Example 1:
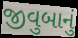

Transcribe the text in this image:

જીવુબાનું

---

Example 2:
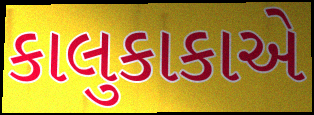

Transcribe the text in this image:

કાલુકાકાએ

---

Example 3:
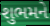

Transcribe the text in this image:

શુભમને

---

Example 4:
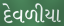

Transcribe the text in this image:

દેવળીયા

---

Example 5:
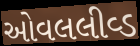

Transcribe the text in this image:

ઓવલલીવ્ડ